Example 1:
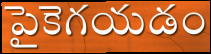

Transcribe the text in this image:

పైకెగయడం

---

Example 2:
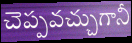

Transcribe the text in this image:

చెప్పవచ్చుగానీ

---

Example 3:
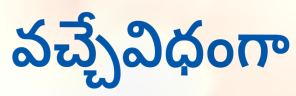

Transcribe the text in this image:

వచ్చేవిధంగా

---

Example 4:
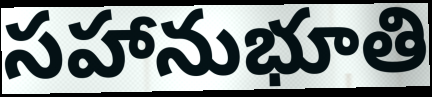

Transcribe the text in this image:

సహానుభూతి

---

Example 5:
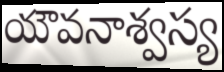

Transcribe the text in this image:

యౌవనాశ్వస్య